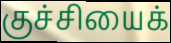
குச்சியைக்